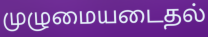
முழுமையடைதல்